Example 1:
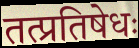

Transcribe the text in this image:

तत्प्रतिषेधः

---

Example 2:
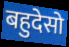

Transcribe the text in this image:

बहुदेसो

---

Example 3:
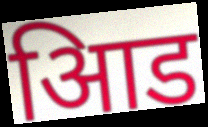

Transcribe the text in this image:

आिड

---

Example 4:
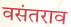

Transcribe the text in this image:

वसंतराव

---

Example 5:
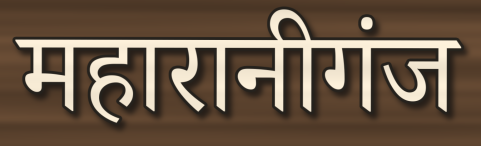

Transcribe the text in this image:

महारानीगंज